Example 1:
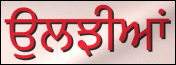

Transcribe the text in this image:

ਉਲਝੀਆਂ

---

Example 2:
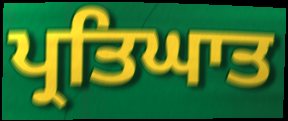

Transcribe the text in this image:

ਪ੍ਰਤਿਘਾਤ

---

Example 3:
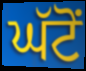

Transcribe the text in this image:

ਘੱਟੋਂ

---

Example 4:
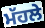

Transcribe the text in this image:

ਮੱਹਲੇ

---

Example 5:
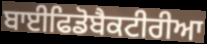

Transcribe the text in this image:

ਬਾਈਫਿਡੋਬੈਕਟੀਰੀਆ